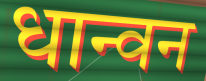
धान्वन